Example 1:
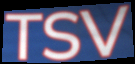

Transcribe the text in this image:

TSV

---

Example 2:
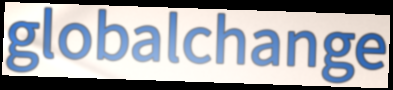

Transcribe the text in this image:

globalchange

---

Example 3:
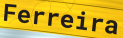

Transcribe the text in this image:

Ferreira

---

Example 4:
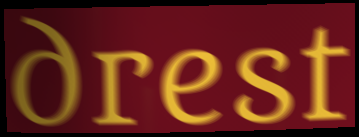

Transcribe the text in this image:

drest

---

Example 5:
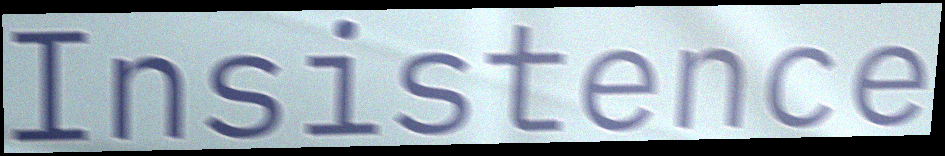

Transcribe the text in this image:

Insistence